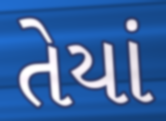
તેયાં